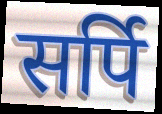
सर्पि